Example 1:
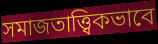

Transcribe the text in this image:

সমাজতাত্ত্বিকভাবে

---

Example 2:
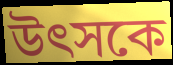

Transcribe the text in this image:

উৎসকে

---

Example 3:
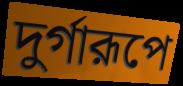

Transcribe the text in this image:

দুর্গারূপে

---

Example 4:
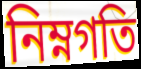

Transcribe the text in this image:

নিম্নগতি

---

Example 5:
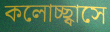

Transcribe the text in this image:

কলোচ্ছ্বাসে